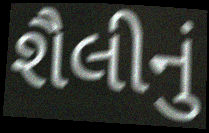
શૈલીનું